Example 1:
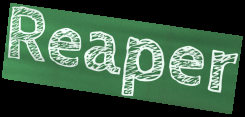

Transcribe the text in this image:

Reaper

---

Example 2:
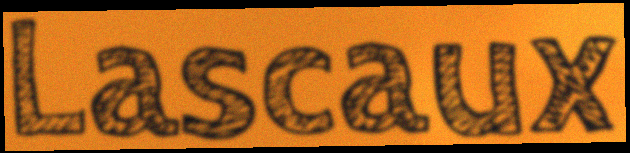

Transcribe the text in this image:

Lascaux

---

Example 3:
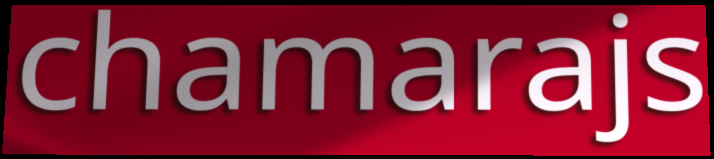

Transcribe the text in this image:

chamarajs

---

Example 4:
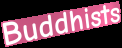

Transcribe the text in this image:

Buddhists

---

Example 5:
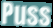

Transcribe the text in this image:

Puss